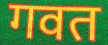
गवत